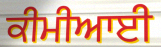
ਕੀਮੀਆਈ